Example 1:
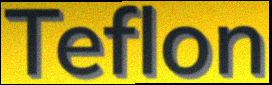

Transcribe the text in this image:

Teflon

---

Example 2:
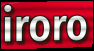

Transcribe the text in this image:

iroro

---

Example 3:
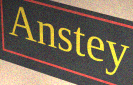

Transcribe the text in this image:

Anstey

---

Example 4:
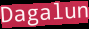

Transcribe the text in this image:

Dagalun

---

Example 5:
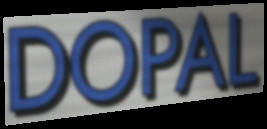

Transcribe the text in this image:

DOPAL